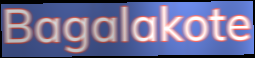
Bagalakote